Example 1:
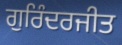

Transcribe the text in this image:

ਗੁਰਿੰਦਰਜੀਤ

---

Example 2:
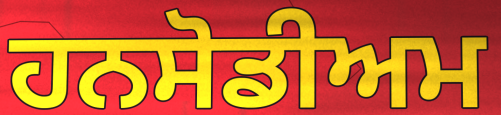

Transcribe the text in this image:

ਹਨਸੋਡੀਅਮ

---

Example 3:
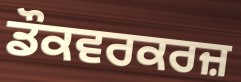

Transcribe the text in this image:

ਡੌਕਵਰਕਰਜ਼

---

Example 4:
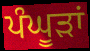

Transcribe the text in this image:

ਪੰਘੂੜਾਂ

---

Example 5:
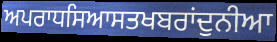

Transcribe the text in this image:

ਅਪਰਾਧਸਿਆਸਤਖਬਰਾਂਦੁਨੀਆ